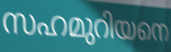
സഹമുറിയനെ